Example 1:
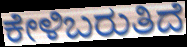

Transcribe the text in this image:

ಕೇಳಿಬರುತಿದೆ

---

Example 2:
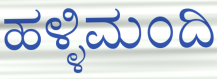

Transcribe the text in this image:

ಹಳ್ಳಿಮಂದಿ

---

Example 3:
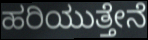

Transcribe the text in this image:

ಹರಿಯುತ್ತೇನೆ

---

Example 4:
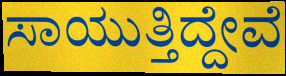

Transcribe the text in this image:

ಸಾಯುತ್ತಿದ್ದೇವೆ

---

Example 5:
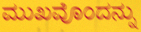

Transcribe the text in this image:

ಮುಖವೊಂದನ್ನು